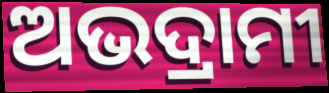
ଅଭଦ୍ରାମୀ